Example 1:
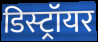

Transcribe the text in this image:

डिस्‍ट्रॉयर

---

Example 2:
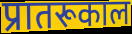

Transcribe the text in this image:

प्रातरूकाल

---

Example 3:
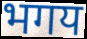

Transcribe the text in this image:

भगय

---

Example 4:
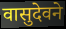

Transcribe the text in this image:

वासुदेवने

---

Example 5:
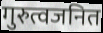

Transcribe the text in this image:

गुरुत्वजनित